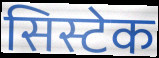
सिस्टेक